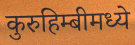
कुरुहिम्बीमध्ये